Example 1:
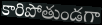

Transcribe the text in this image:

కారిపోతుండగా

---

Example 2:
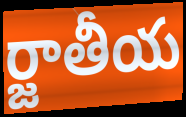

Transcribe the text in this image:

ర్జాతీయ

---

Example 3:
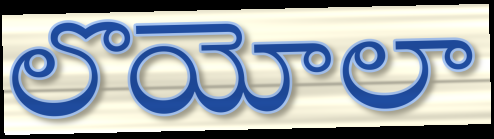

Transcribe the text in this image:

లొయోలా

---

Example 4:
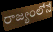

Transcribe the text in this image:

రాజ్యంలోనే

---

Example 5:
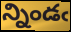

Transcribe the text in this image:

న్నిండఁ